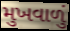
મુખવાળું